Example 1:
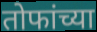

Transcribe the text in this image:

तोफांच्या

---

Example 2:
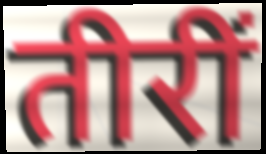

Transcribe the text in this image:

तीरीं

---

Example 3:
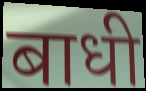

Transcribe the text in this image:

बाधी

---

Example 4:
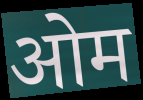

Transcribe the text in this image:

ओम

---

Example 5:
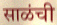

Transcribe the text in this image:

साळंची